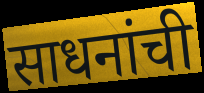
साधनांची